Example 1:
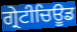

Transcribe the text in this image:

ਗ੍ਰੇਟੀਚਿਊਡ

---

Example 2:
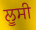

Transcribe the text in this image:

ਲੂਸੀ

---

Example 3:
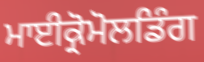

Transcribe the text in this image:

ਮਾਈਕ੍ਰੋਮੋਲਡਿੰਗ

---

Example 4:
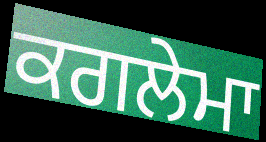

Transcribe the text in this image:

ਕਗਲੇਮਾ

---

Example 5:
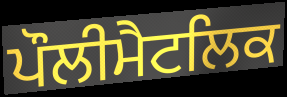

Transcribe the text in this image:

ਪੌਲੀਮੈਟਲਿਕ